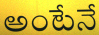
అంటేనే